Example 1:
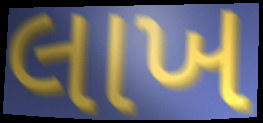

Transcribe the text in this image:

લાખ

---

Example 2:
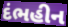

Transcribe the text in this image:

દંભહીન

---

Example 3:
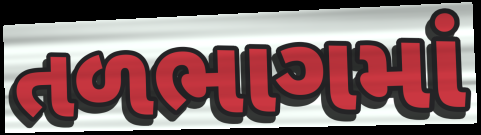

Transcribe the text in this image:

તળભાગમાં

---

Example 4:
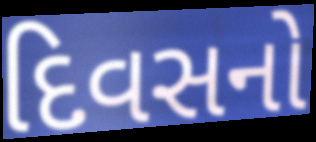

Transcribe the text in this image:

દિવસનો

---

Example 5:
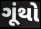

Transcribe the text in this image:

ગૂંથો